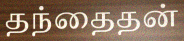
தந்தைதன்